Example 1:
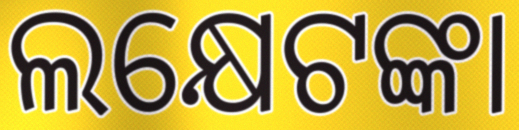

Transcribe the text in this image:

ଲକ୍ଷେଟଙ୍କା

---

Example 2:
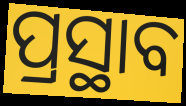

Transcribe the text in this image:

ପ୍ରସ୍ଥାବ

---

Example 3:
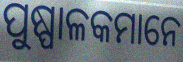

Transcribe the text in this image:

ପୁଷ୍ପାଳକମାନେ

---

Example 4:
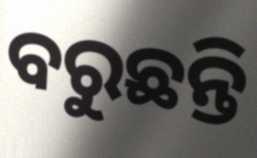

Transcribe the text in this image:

ବରୁଛନ୍ତି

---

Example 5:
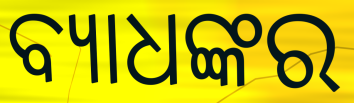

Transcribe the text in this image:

ବ୍ୟାଧଙ୍କର